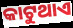
କାଟୁଥାଏ